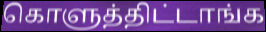
கொளுத்திட்டாங்க